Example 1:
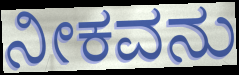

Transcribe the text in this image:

ನೀಕವನು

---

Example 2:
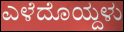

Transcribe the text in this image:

ಎಳೆದೊಯ್ದಳು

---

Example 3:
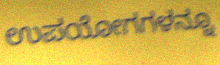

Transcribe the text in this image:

ಉಪಯೋಗಗಳನ್ನೂ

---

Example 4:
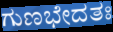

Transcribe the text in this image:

ಗುಣಭೇದತಃ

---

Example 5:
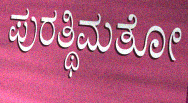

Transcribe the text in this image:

ಪುರತ್ಥಿಮತೋ